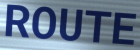
ROUTE